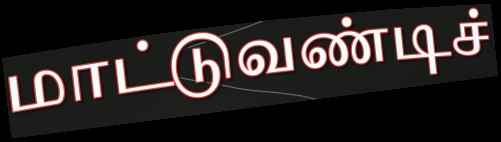
மாட்டுவண்டிச்